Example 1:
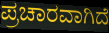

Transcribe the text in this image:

ಪ್ರಚಾರವಾಗಿದೆ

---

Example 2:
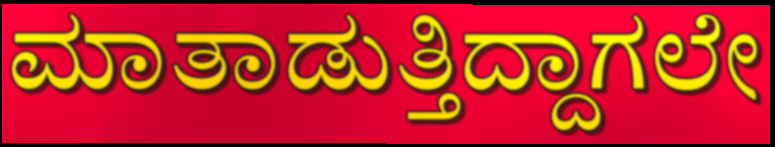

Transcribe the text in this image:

ಮಾತಾಡುತ್ತಿದ್ದಾಗಲೇ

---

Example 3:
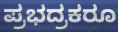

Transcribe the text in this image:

ಪ್ರಭದ್ರಕರೂ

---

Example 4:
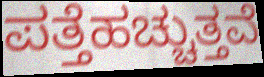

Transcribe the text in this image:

ಪತ್ತೆಹಚ್ಚುತ್ತವೆ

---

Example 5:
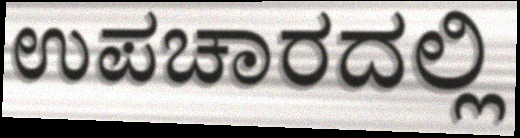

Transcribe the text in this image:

ಉಪಚಾರದಲ್ಲಿ